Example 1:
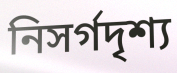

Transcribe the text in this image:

নিসর্গদৃশ্য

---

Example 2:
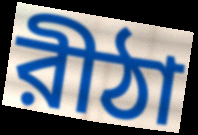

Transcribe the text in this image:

রীঠা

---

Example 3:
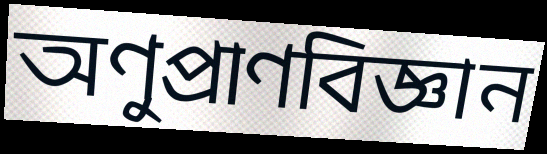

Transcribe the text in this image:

অণুপ্রাণবিজ্ঞান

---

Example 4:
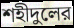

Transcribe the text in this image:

শহীদুলের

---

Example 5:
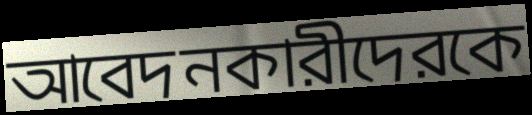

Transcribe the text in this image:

আবেদনকারীদেরকে